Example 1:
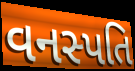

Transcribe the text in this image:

વનસ્પતિ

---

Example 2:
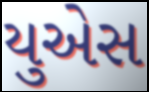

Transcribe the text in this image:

યુએસ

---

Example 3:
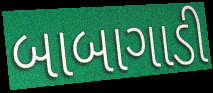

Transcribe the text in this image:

બાબાગાડી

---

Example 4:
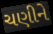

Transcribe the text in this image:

ચણીને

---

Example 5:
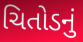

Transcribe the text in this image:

ચિતોડનું